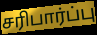
சரிபார்ப்பு